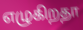
எழுகிறதா